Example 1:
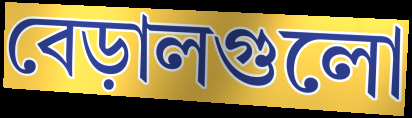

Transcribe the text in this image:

বেড়ালগুলো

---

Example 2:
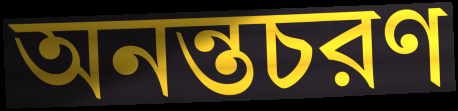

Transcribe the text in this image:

অনন্তচরণ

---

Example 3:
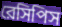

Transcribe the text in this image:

রেসিপিস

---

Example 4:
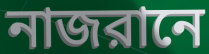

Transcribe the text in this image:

নাজরানে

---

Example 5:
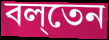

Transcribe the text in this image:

বল্তেন